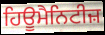
ਹਿਊਮੈਨਿਟੀਜ਼